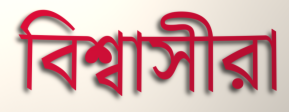
বিশ্বাসীরা